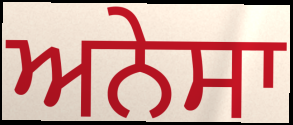
ਅਨੇਸਾ